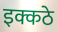
इक्कठे